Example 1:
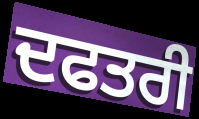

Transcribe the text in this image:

ਦਫਤਰੀ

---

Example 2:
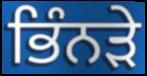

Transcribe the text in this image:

ਭਿੰਨੜੇ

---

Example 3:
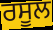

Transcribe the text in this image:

ਰਸੂਲ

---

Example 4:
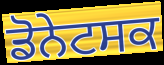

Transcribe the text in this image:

ਡੋਨੇਟਸਕ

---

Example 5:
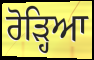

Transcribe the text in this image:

ਰੋੜ੍ਹਿਆ